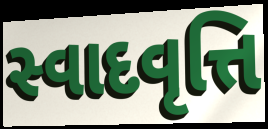
સ્વાદવૃત્તિ